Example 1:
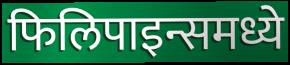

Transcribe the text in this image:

फिलिपाइन्समध्ये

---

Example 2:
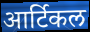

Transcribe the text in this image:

आर्टिकल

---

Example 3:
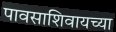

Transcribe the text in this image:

पावसाशिवायच्या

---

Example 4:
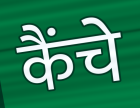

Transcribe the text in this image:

कैंचे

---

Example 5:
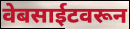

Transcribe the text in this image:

वेबसाईटवरून